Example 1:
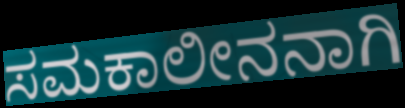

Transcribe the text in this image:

ಸಮಕಾಲೀನನಾಗಿ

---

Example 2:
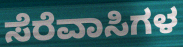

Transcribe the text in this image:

ಸೆರೆವಾಸಿಗಳ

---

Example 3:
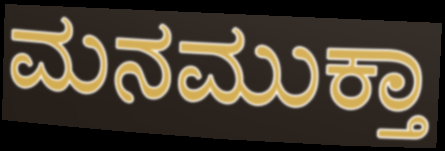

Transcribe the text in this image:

ಮನಮುಕ್ತಾ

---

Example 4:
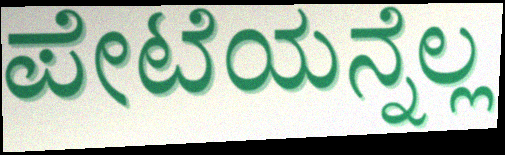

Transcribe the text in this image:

ಪೇಟೆಯನ್ನೆಲ್ಲ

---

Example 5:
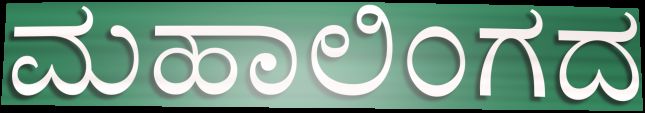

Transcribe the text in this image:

ಮಹಾಲಿಂಗದ